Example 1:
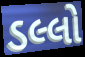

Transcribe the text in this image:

ડલ્લો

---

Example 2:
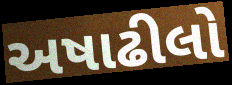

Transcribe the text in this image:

અષાઢીલો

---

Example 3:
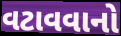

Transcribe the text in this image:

વટાવવાનો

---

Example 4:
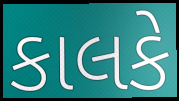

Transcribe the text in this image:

કાલકે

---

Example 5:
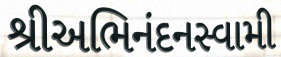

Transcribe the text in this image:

શ્રીઅભિનંદનસ્વામી